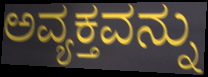
ಅವ್ಯಕ್ತವನ್ನು